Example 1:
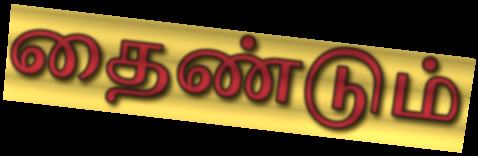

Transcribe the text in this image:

தைண்டும்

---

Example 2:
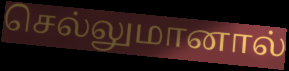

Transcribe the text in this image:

செல்லுமானால்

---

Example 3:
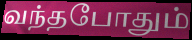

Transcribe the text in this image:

வந்தபோதும்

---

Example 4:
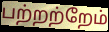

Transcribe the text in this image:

பற்றற்றேம்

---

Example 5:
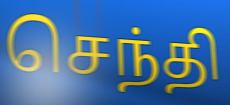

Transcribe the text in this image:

செந்தி